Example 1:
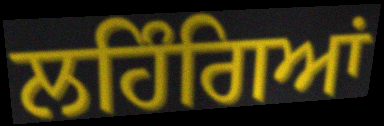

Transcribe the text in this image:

ਲਹਿੰਗਿਆਂ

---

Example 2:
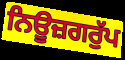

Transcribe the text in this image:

ਨਿਊਜ਼ਗਰੁੱਪ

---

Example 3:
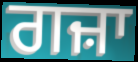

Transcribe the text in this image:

ਗਜ਼ਾ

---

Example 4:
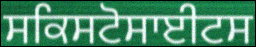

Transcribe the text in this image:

ਸਕਿਸਟੋਸਾਈਟਸ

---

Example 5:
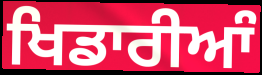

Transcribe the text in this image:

ਖਿਡਾਰੀਆੰ